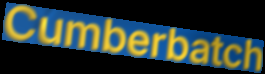
Cumberbatch